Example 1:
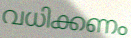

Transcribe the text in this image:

വധിക്കണം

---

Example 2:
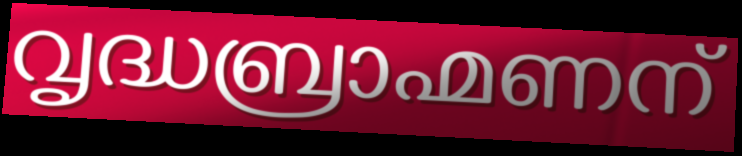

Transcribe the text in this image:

വൃദ്ധബ്രാഹ്മണന്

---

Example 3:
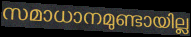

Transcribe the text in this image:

സമാധാനമുണ്ടായില്ല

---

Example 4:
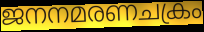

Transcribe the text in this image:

ജനനമരണചക്രം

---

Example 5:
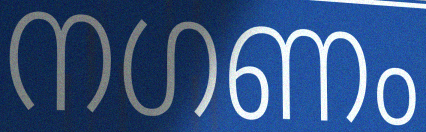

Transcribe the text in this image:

നഗണം